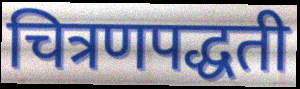
चित्रणपद्धती